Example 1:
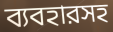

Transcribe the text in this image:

ব্যবহারসহ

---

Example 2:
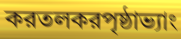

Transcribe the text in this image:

করতলকরপৃষ্ঠাভ্যাং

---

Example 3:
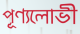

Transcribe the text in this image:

পূণ্যলোভী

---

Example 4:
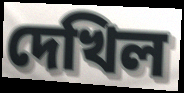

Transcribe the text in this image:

দেখিল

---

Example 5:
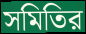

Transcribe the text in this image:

সমিতির